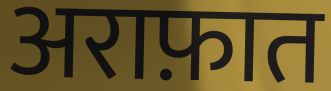
अराफ़ात